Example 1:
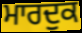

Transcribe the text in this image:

ਮਾਰਦੁਕ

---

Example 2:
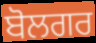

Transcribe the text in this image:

ਬੋਲਗਰ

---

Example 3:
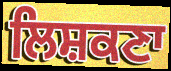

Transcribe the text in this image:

ਲਿਸ਼ਕਣਾ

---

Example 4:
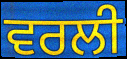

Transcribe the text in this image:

ਵਰਲੀ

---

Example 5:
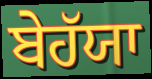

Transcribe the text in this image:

ਬੇਹੱਯਾ